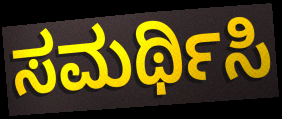
ಸಮರ್ಥಿಸಿ